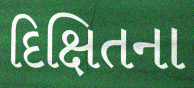
દિક્ષિતના